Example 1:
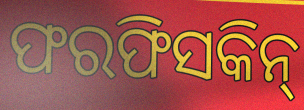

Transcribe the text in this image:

ଫରଫିସକିନ୍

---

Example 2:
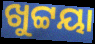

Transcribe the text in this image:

ଖୁଟ୍ଟୟା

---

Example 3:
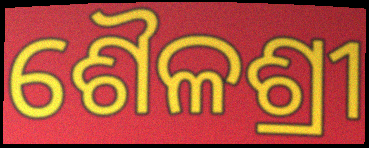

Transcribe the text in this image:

ଶୈଳଶ୍ରୀ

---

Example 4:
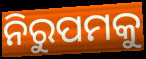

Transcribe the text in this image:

ନିରୁପମକୁ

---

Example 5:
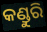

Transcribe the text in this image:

କଣ୍ଡୁରି